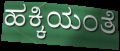
ಹಕ್ಕಿಯಂತೆ